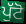
ਪੁੱਟੋ